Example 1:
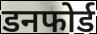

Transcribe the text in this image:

डनफोर्ड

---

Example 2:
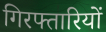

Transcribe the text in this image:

गिरफ्तारियों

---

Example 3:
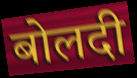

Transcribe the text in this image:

बोलदी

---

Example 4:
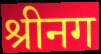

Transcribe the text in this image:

श्रीनग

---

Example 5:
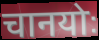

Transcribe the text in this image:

चानयोः